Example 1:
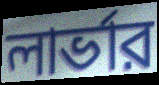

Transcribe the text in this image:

লার্ভার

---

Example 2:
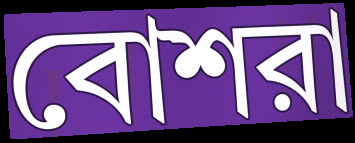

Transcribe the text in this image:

বোশরা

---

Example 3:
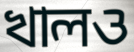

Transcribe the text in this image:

খালও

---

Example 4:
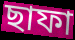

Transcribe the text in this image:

ছাফা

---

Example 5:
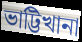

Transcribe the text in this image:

ভাট্টিখানা